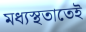
মধ্যস্থতাতেই